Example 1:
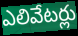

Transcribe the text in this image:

ఎలివేటర్లు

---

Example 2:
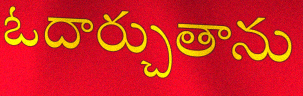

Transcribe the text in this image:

ఓదార్చుతాను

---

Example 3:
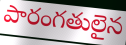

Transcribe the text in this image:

పారంగతులైన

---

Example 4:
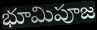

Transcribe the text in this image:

భూమిపూజ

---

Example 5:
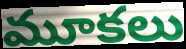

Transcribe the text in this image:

మూకలు